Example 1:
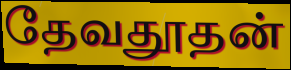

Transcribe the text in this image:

தேவதூதன்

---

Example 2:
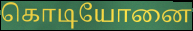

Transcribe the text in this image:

கொடியோனை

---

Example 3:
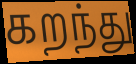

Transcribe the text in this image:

கறந்து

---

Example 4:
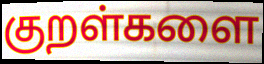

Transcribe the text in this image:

குறள்களை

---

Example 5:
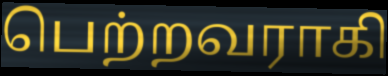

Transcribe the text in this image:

பெற்றவராகி